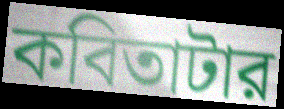
কবিতাটার